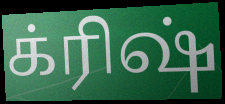
க்ரிஷ்